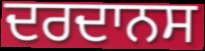
ਦਰਦਾਨਸ